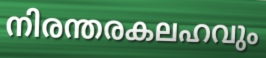
നിരന്തരകലഹവും